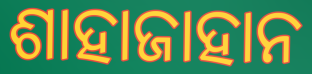
ଶାହାଜାହାନ